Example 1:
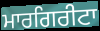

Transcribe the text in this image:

ਮਾਰਗਿਰੀਟਾ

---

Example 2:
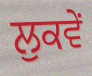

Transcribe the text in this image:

ਲੁਕਵੇਂ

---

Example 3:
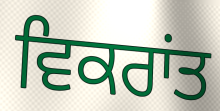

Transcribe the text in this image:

ਵਿਕਰਾਂਤ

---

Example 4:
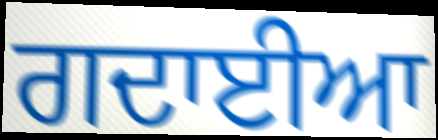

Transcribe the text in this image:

ਗਦਾਈਆ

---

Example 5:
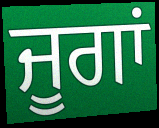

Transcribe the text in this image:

ਜੂਗਾਂ